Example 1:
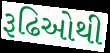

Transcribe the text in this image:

રૂઢિઓથી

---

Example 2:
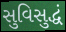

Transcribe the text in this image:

સુવિસુદ્ધં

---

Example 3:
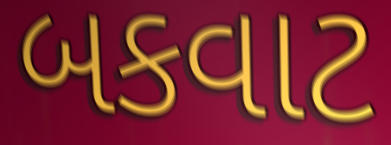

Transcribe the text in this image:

બકવાટ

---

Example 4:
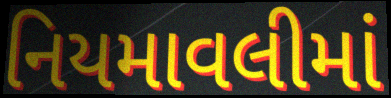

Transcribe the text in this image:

નિયમાવલીમાં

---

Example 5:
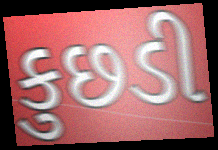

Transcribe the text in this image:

કુછડી